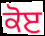
ਕੋੲ